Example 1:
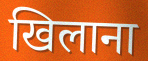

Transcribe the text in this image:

खिलाना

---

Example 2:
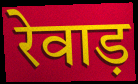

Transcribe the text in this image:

रेवाड़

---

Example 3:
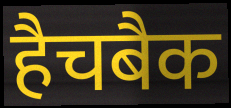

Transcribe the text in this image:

हैचबैक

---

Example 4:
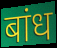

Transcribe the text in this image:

बांध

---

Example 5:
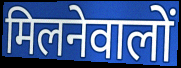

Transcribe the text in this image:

मिलनेवालों